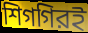
শিগগিরই